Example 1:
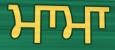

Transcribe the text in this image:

ਮਾਮਾ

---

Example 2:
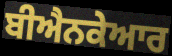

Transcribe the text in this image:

ਬੀਐਨਕੇਆਰ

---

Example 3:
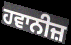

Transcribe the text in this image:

ਹਵਾਨੀਜ਼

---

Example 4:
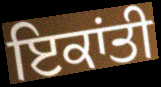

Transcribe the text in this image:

ਇਕਾਂਤੀ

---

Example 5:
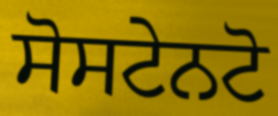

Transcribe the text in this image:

ਸੋਸਟੇਨਟੋ